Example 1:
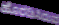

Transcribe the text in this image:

ಹೊರಡಿಸಿರುವ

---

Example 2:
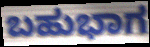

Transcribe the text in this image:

ಬಹುಭಾಗ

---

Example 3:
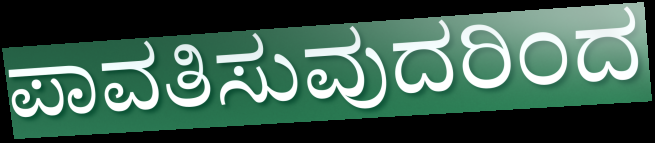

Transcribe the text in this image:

ಪಾವತಿಸುವುದರಿಂದ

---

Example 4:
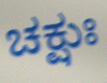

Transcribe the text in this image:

ಚಕ್ಷುಃ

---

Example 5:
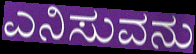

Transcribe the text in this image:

ಎನಿಸುವನು